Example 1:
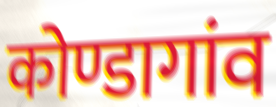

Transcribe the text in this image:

कोण्डागांव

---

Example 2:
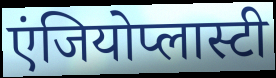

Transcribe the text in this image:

एंजियोप्लास्टी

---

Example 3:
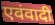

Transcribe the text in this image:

एवंवादी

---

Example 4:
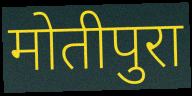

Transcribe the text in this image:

मोतीपुरा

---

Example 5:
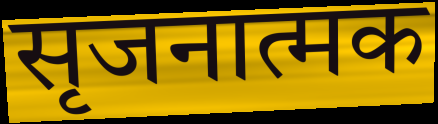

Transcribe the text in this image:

सृजनात्मक